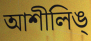
আশীলিঙ্